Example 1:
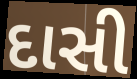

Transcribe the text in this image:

દાસી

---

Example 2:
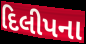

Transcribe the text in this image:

દિલીપના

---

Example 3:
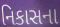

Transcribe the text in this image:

નિકાસના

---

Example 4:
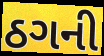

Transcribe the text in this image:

ઠગની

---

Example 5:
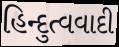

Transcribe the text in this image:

હિન્દુત્વવાદી